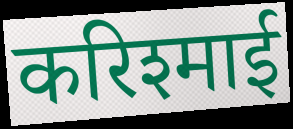
करिश्माई